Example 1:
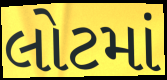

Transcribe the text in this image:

લોટમાં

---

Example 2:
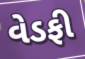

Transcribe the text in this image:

વેડફી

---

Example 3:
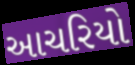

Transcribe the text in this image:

આચરિયો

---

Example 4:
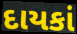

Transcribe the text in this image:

દાયકાં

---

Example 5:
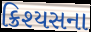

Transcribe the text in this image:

ક્રિશ્યસના